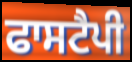
ਫਾਸਟੈਪੀ